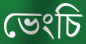
ভেংচি